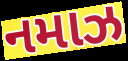
નમાઝ